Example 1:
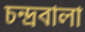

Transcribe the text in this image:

চন্দ্রবালা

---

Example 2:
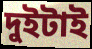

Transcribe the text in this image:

দুইটাই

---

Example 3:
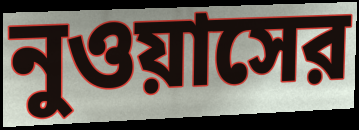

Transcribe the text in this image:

নুওয়াসের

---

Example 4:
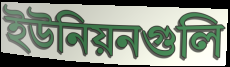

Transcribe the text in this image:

ইউনিয়নগুলি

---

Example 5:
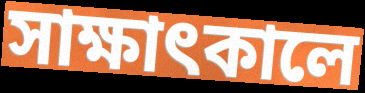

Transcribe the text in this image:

সাক্ষাৎকালে